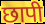
छापी